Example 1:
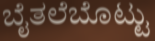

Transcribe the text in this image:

ಬೈತಲೆಬೊಟ್ಟು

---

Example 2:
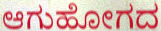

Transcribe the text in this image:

ಆಗುಹೋಗದ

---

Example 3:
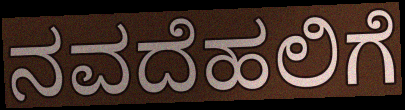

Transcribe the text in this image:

ನವದೆಹಲಿಗೆ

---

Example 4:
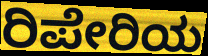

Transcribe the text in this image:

ರಿಪೇರಿಯ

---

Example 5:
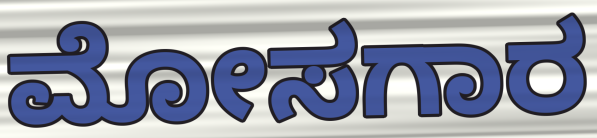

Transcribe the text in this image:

ಮೋಸಗಾರ